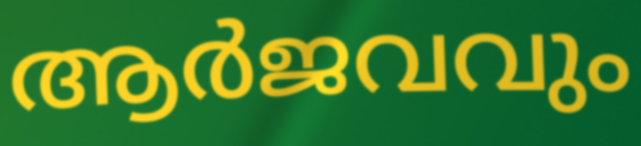
ആർജവവും